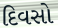
દિવસો